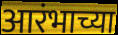
आरंभाच्या